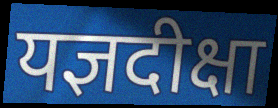
यज्ञदीक्षा